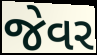
જેવર